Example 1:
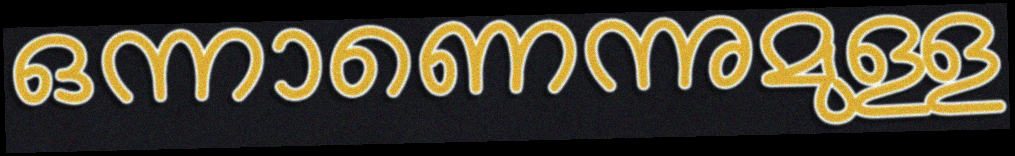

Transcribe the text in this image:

ഒന്നാണെന്നുമുള്ള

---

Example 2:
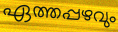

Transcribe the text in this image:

ഏത്തപ്പഴവും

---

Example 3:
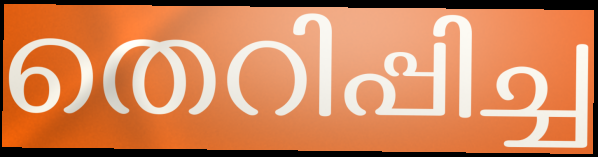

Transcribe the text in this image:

തെറിപ്പിച്ച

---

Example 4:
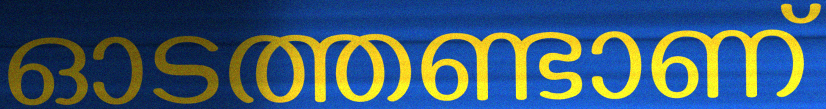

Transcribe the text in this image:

ഓടത്തണ്ടാണ്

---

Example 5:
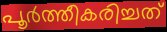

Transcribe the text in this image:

പൂർത്തീകരിച്ചത്